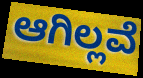
ಆಗಿಲ್ಲವೆ